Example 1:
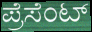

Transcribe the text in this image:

ಪ್ರೆಸೆಂಟ್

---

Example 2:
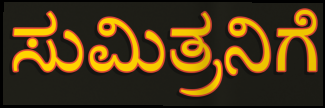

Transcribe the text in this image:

ಸುಮಿತ್ರನಿಗೆ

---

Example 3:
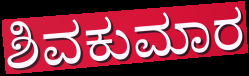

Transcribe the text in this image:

ಶಿವಕುಮಾರ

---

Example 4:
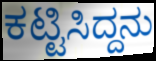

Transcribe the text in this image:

ಕಟ್ಟಿಸಿದ್ದನು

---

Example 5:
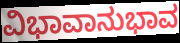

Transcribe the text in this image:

ವಿಭಾವಾನುಭಾವ